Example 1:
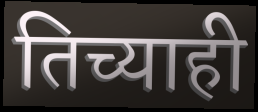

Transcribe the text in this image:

तिच्याही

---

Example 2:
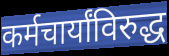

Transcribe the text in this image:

कर्मचार्यांविरुद्ध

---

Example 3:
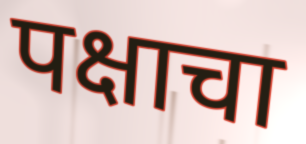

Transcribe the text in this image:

पक्षाचा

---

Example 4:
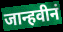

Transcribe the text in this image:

जान्हवीनं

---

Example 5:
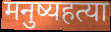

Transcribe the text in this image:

मनुष्यहत्या